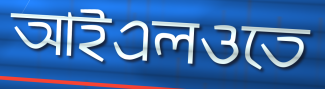
আইএলওতে